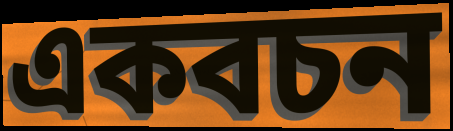
একবচন